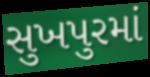
સુખપુરમાં